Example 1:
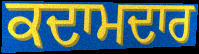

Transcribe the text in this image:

ਕਦਾਮਦਾਰ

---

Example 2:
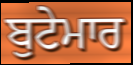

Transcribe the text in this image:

ਬੁਟੇਮਾਰ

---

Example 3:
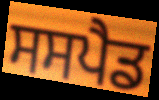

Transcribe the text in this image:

ਸਸਪੈਡ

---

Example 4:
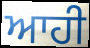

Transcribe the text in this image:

ਆਹੀ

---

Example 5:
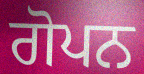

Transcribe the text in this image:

ਗੋਪਨ